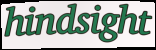
hindsight